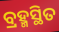
ବ୍ରହ୍ମସ୍ଥିତ